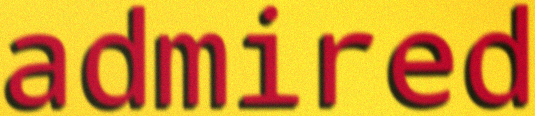
admired